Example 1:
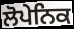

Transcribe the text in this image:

ਲੋਪੇਨਿਕ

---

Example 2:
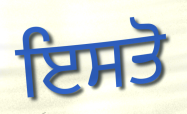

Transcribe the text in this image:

ਇਸਤੋ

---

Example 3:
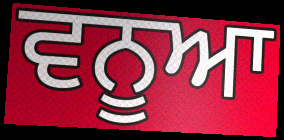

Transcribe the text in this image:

ਵਨੂਆ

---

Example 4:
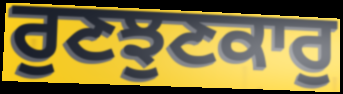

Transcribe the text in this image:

ਰੁਣਝੁਣਕਾਰੁ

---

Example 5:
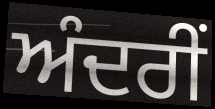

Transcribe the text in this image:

ਅੰਦਰੀਂ